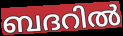
ബദറിൽ